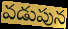
వడుపున